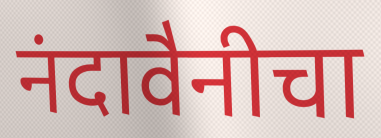
नंदावैनीचा